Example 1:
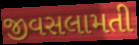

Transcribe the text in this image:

જીવસલામતી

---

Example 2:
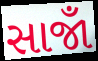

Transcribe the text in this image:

સાજાઁ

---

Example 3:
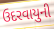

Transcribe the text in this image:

ઉદરવાયુની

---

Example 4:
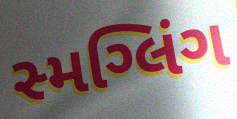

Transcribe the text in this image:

સ્મગ્લિંગ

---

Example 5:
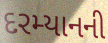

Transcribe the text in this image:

દરમ્યાનની